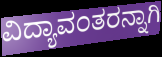
ವಿದ್ಯಾವಂತರನ್ನಾಗಿ